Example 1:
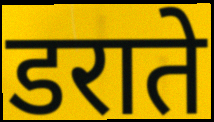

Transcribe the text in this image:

डराते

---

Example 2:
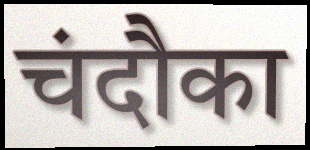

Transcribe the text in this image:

चंदौका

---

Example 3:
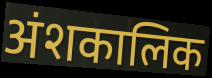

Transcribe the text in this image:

अंशकालिक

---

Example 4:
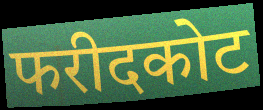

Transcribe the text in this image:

फरीदकोट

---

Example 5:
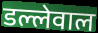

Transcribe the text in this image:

डल्लेवाल